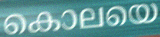
കൊലയെ